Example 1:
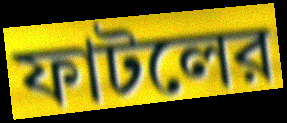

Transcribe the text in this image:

ফাটলের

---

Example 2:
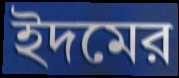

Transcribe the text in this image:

ইদমের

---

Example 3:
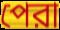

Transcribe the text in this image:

পেরা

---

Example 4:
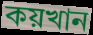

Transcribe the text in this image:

কয়খান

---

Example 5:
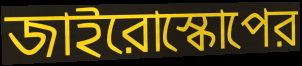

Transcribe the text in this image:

জাইরোস্কোপের